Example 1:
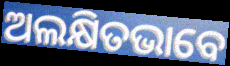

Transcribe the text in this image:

ଅଲକ୍ଷିତଭାବେ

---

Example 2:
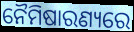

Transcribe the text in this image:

ନୈମିଷାରଣ୍ୟରେ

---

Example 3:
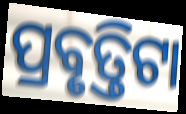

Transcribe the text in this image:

ପ୍ରବୃତ୍ତିଟା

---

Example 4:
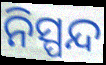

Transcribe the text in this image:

ନିସ୍ପନ୍ଦ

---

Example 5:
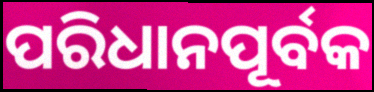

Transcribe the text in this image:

ପରିଧାନପୂର୍ବକ